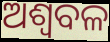
ଅଶ୍ୱବଳ